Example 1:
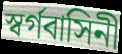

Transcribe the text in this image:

স্বর্গবাসিনী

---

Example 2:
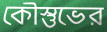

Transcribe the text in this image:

কৌস্তুভের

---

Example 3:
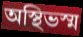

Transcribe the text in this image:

অস্থিভস্ম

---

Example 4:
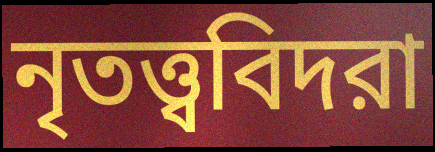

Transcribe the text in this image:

নৃতত্ত্ববিদরা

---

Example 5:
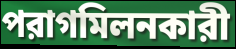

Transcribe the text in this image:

পরাগমিলনকারী